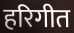
हरिगीत